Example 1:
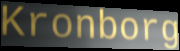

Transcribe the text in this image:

Kronborg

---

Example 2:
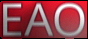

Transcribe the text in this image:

EAO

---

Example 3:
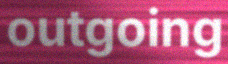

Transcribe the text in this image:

outgoing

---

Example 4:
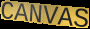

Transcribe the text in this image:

CANVAS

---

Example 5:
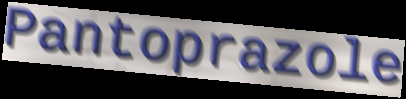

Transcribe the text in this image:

Pantoprazole